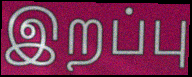
இறப்பு